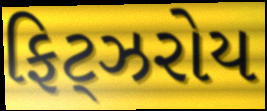
ફિટ્ઝરોય